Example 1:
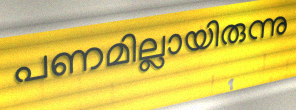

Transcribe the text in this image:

പണമില്ലായിരുന്നു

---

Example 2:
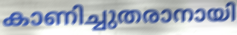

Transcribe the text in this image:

കാണിച്ചുതരാനായി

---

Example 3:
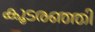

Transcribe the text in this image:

കൂടരഞ്ഞി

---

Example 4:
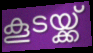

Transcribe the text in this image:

കൂടയ്ക്ക്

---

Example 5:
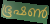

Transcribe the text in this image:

ഭൂഷൺ